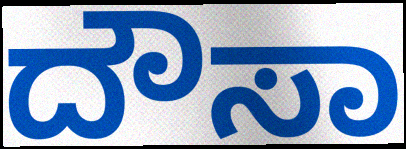
ದೌಸಾ